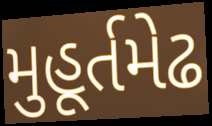
મુહૂર્તમેઢ